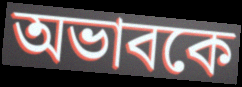
অভাবকে